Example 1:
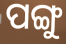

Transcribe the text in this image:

ପଙ୍ଗୁ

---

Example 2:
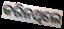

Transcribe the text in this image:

କରିନଥିଲେ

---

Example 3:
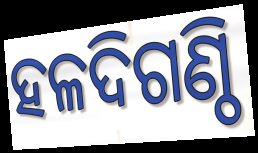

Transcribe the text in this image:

ହଳଦିଗଣ୍ଠି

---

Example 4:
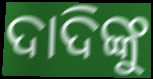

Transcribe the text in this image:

ଦାଦିଙ୍କୁ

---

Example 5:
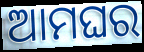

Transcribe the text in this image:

ଆମଘର